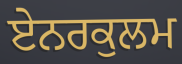
ਏਨਰਕੁਲਮ